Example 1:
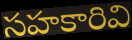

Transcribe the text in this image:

సహకారివి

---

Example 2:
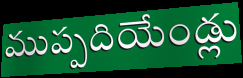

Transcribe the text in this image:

ముప్పదియేండ్లు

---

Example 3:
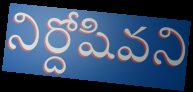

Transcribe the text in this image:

నిర్దోషివని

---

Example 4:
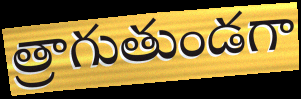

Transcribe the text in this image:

త్రాగుతుండగా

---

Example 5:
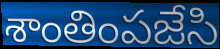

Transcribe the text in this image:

శాంతింపజేసి